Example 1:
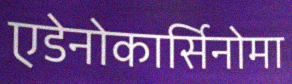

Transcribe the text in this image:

एडेनोकार्सिनोमा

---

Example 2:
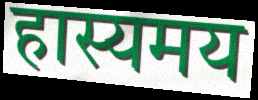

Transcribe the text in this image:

हास्यमय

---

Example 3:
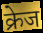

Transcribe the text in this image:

क्रेज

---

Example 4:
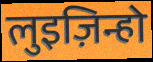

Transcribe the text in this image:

लुइज़िन्हो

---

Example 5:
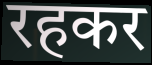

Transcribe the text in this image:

रहकर